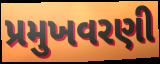
પ્રમુખવરણી